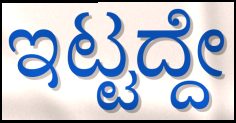
ಇಟ್ಟದ್ದೇ